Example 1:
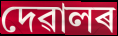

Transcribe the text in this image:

দেৱালৰ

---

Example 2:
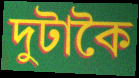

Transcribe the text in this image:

দুটাকৈ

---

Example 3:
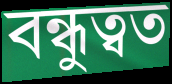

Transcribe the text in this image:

বন্ধুত্বত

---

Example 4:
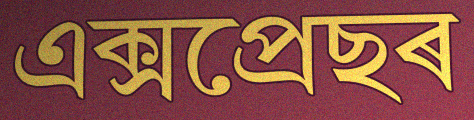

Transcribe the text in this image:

এক্সপ্ৰেছৰ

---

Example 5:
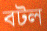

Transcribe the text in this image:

বটল